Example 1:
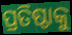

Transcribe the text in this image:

ପ୍ରତିଷ୍ଠାକୁ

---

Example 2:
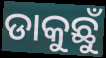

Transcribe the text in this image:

ଡାକୁଛୁଁ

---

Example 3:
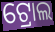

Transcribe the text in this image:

ଟ୍ରୋଲ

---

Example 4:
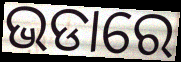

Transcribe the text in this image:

ଭଡାରେ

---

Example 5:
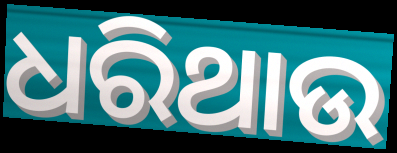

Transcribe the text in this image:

ଧରିଥାଉ